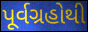
પૂર્વગ્રહોથી